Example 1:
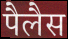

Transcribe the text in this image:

पैलैस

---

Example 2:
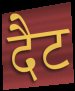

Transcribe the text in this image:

दैट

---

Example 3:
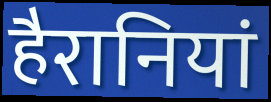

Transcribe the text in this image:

हैरानियां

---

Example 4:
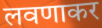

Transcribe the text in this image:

लवणाकर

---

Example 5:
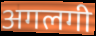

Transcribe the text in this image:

अगलगी